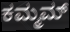
ಕಮ್ಮಮ್